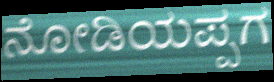
ನೋಡಿಯಪ್ಪಗ